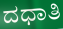
ದಧಾತಿ